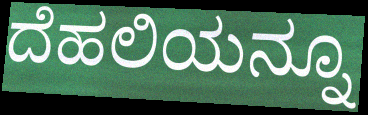
ದೆಹಲಿಯನ್ನೂ